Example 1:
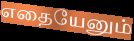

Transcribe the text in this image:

எதையேனும்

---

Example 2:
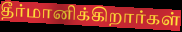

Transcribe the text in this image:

தீர்மானிக்கிறார்கள்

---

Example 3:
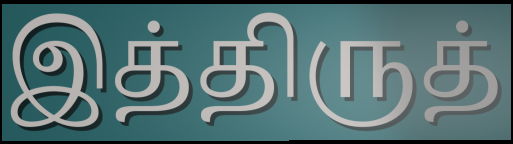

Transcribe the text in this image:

இத்திருத்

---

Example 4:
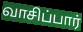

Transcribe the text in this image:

வாசிப்பார்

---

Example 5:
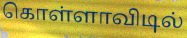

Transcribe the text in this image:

கொள்ளாவிடில்